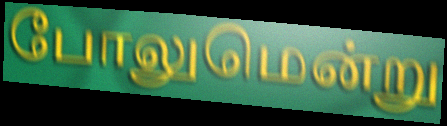
போலுமென்று